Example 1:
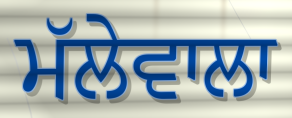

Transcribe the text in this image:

ਮੱਲੇਵਾਲਾ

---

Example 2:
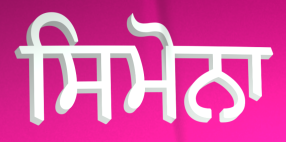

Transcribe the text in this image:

ਸਿਮੋਨਾ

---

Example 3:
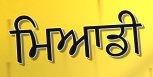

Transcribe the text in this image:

ਮਿਆਡੀ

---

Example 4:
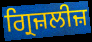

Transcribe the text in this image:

ਗ੍ਰਿਜ਼ਲੀਜ਼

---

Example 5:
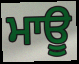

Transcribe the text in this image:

ਮਾਊ